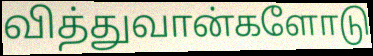
வித்துவான்களோடு